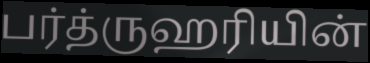
பர்த்ருஹரியின்